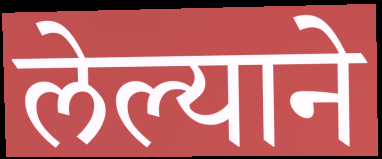
लेल्याने